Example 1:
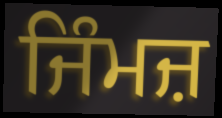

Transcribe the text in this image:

ਜਿੰਮਜ਼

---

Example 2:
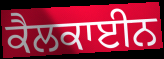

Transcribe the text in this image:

ਕੈਲਕਾਈਨ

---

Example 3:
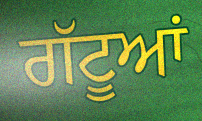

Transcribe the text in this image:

ਗੱਟੂਆਂ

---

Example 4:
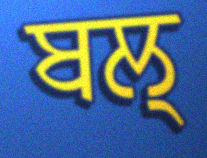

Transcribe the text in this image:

ਬਲ੍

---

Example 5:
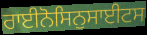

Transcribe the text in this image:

ਰਾਈਨੋਸਿਨੁਸਾਈਟਸ